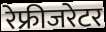
रेफ्रीजरेटर